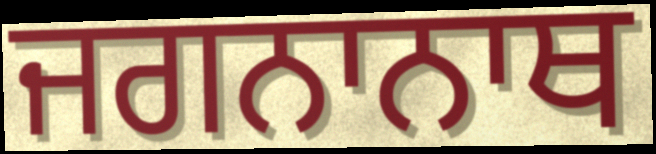
ਜਗਨਾਨਾਥ